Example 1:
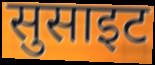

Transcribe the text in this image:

सुसाइट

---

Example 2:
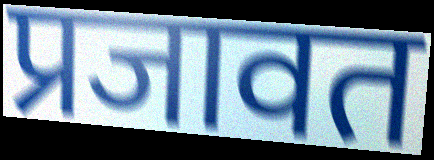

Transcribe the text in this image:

प्रजावत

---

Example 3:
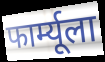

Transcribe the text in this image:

फार्म्यूला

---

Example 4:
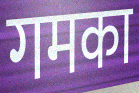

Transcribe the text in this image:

गमका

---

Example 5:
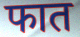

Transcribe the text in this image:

फात